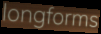
longforms